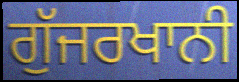
ਗੁੱਜਰਖਾਨੀ